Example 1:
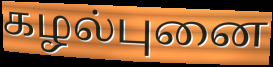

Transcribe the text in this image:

கழல்புனை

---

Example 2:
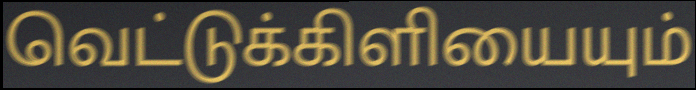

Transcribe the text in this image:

வெட்டுக்கிளியையும்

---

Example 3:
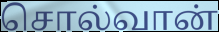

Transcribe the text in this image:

சொல்வான்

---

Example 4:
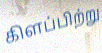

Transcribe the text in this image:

கிளப்பிற்று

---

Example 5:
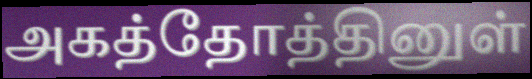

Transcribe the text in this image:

அகத்தோத்தினுள்